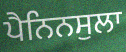
ਪੈਨਿਨਸੁਲਾ